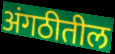
अंगठीतील